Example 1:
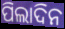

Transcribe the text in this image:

ପିଲାଦିନ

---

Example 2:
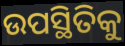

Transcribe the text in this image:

ଉପସ୍ଥିତିକୁ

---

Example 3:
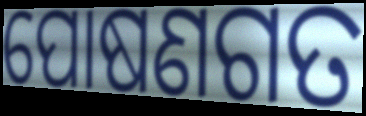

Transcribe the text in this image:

ପୋଷଣଗତ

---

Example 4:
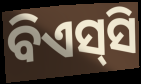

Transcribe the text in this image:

ବିଏସ୍‌ସି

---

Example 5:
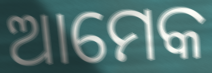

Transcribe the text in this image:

ଆମେକ